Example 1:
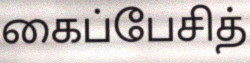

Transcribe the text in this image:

கைப்பேசித்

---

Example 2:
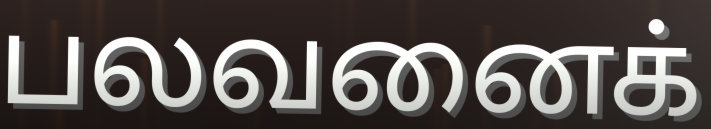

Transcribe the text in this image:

பலவனைக்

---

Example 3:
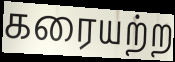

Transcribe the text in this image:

கரையற்ற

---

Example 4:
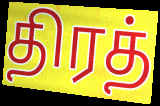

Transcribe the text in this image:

திரத்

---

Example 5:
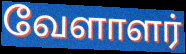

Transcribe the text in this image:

வேளாளர்